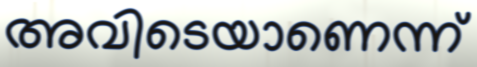
അവിടെയാണെന്ന്